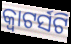
କ୍ୱାଟର୍ସଟି